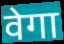
वेगा